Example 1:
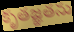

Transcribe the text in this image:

కృతజ్ఞతను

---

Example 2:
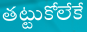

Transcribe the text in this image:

తట్టుకోలేకే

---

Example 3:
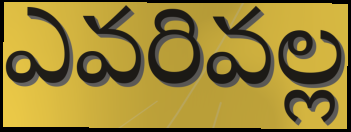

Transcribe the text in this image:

ఎవరివల్ల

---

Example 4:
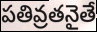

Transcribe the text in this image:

పతివ్రతనైతే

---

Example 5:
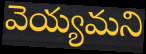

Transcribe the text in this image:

వెయ్యమని